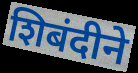
शिबंदीने